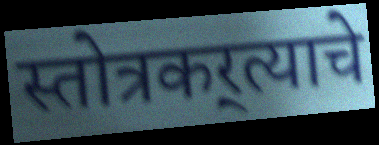
स्तोत्रकर्त्याचे